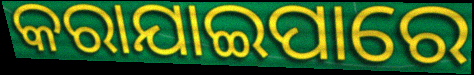
କରାଯାଇପାରେ